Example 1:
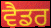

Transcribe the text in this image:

ਵੈਡਰ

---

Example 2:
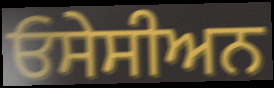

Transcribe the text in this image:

ਓਸੇਸੀਅਨ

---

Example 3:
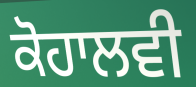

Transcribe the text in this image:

ਕੋਹਾਲਵੀ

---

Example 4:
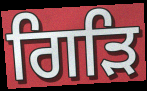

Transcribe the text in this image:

ਗਿੜਿ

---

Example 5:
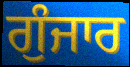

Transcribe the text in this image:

ਗੁੰਜਾਰ